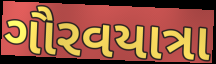
ગૌરવયાત્રા